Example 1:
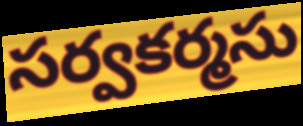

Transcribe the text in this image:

సర్వకర్మసు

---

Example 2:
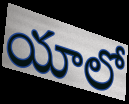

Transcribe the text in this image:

యాలో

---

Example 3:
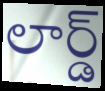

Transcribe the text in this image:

లార్డ్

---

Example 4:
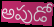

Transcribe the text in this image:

అపుడో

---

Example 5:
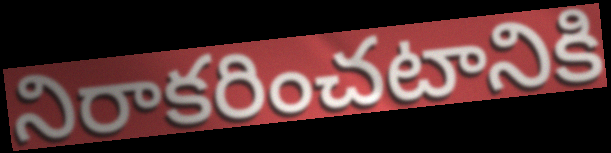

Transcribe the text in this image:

నిరాకరించటానికి